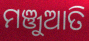
ମଞ୍ଜୁଆତି